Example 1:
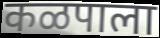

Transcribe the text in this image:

कळपाला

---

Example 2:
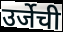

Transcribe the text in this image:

उर्जेची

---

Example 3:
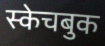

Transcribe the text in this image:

स्केचबुक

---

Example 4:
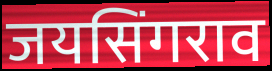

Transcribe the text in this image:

जयसिंगराव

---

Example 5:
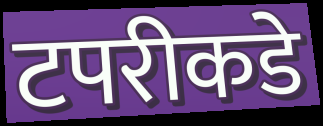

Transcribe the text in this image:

टपरीकडे